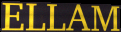
ELLAM